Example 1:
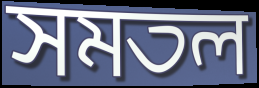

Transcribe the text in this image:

সমতল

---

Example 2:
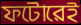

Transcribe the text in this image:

ফটোৱেই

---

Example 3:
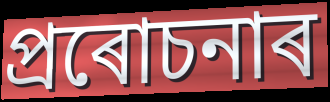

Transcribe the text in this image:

প্ৰৰোচনাৰ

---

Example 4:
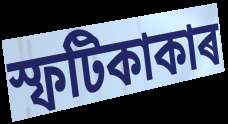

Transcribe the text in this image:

স্ফটিকাকাৰ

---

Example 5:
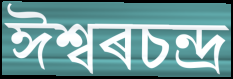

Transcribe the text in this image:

ঈশ্বৰচন্দ্ৰ